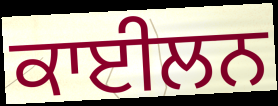
ਕਾਈਲਨ